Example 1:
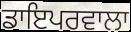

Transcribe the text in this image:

ਡਾਇਪਰਵਾਲਾ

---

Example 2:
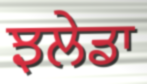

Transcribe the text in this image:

ਝਲੇਡਾ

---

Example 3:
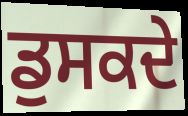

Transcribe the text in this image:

ਡੁਸਕਦੇ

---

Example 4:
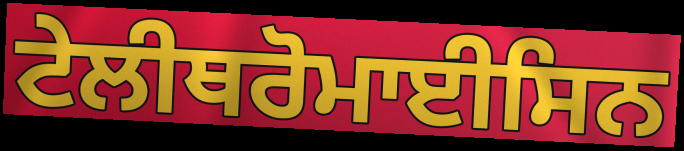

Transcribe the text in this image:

ਟੇਲੀਥਰੋਮਾਈਸਿਨ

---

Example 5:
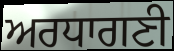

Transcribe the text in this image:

ਅਰਧਾਗਣੀ